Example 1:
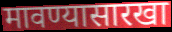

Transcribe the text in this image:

मावण्यासारखा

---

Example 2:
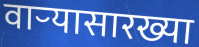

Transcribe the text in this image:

वाऱ्यासारख्या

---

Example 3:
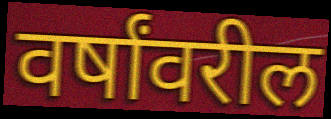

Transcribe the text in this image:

वर्षांवरील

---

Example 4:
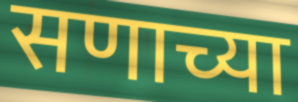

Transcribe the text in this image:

सणाच्या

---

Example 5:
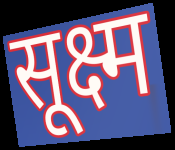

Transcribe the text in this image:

सूक्ष्म